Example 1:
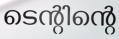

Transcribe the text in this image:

ടെന്റിന്റെ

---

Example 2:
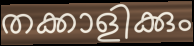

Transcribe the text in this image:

തക്കാളിക്കും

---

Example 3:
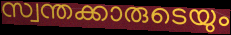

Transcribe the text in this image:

സ്വന്തക്കാരുടെയും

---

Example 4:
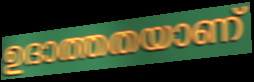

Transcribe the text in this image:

ഉദാത്തതയാണ്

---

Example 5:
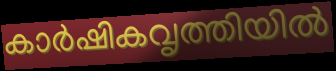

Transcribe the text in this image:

കാർഷികവൃത്തിയിൽ